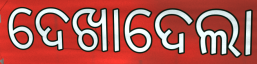
ଦେଖାଦେଲା